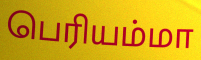
பெரியம்மா